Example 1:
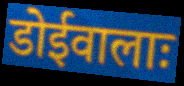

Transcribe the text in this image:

डोईवालाः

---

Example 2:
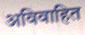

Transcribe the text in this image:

अविवाहित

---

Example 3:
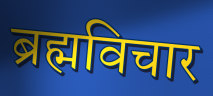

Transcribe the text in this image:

ब्रह्मविचार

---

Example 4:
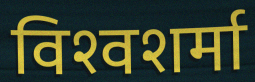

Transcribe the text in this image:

विश्वशर्मा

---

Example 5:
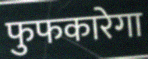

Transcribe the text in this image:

फुफकारेगा